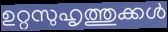
ഉറ്റസുഹൃത്തുക്കൾ